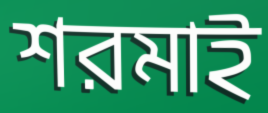
শরমাই